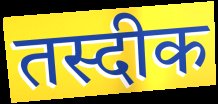
तस्दीक